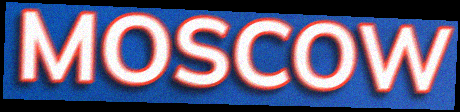
MOSCOW